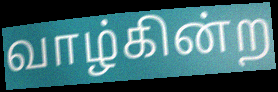
வாழ்கின்ற